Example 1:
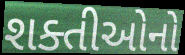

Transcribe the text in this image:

શક્તીઓનો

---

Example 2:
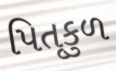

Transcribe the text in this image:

પિતૃકુળ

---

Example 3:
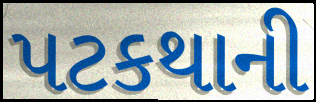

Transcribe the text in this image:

પટકથાની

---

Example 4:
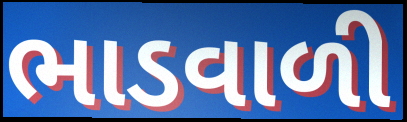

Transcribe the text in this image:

ભાડવાળી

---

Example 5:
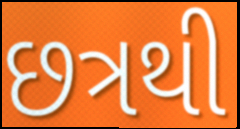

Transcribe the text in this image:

છત્રથી